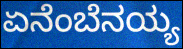
ಏನೆಂಬೆನಯ್ಯ